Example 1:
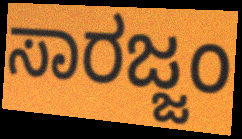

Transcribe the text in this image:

ಸಾರಜ್ಜಂ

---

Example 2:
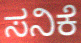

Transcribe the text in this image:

ಸನಿಕೆ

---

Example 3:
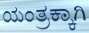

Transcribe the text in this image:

ಯಂತ್ರಕ್ಕಾಗಿ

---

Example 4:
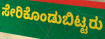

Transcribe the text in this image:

ಸೇರಿಕೊಂಡುಬಿಟ್ಟರು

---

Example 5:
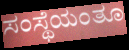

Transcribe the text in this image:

ಸಂಸ್ಥೆಯಂತೂ